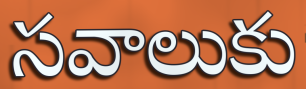
సవాలుకు